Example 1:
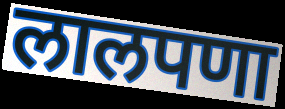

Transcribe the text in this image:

लालपणा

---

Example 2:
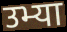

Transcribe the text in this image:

उभ्या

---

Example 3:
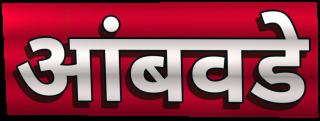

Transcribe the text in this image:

आंबवडे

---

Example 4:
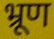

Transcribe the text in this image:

भ्रूण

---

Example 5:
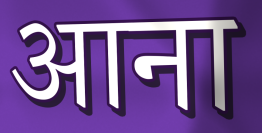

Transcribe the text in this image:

आना